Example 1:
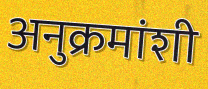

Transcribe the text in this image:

अनुक्रमांशी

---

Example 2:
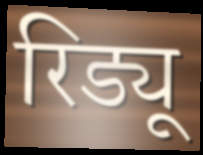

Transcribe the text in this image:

रिड्यू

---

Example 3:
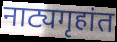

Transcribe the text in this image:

नाट्यगृहांत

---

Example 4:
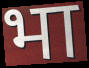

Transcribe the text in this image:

भा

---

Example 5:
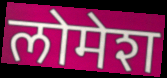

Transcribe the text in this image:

लोमेश